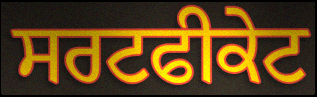
ਸਰਟਫੀਕੇਟ